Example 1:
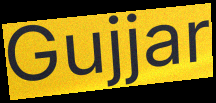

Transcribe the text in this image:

Gujjar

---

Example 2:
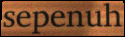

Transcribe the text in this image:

sepenuh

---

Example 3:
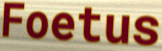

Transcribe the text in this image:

Foetus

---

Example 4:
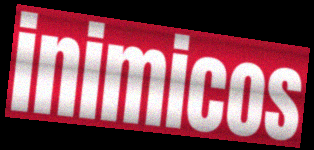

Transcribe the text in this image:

inimicos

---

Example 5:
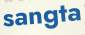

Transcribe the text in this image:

sangta